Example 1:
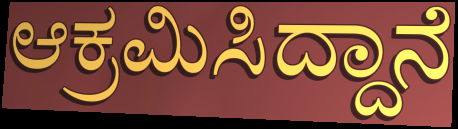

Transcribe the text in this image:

ಆಕ್ರಮಿಸಿದ್ದಾನೆ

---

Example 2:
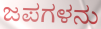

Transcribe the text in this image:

ಜಪಗಳನು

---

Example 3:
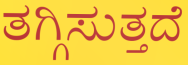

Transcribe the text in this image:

ತಗ್ಗಿಸುತ್ತದೆ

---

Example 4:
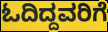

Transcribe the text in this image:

ಓದಿದ್ದವರಿಗೆ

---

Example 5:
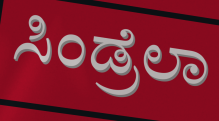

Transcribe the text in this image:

ಸಿಂಡ್ರೆಲಾ